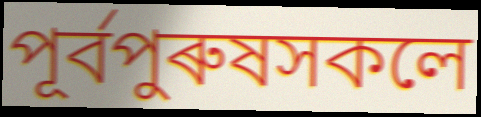
পূৰ্বপুৰুষসকলে